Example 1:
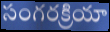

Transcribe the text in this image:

సంగరక్రియా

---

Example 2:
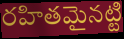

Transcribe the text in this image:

రహితమైనట్టి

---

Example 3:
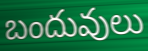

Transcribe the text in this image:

బందువులు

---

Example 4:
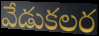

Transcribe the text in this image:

వేడుకలర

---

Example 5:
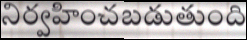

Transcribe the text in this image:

నిర్వహించబడుతుంది